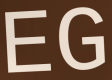
EG